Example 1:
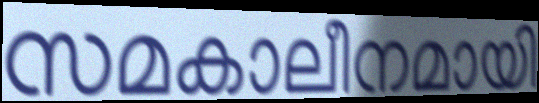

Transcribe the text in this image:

സമകാലീനമായി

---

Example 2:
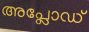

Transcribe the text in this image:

അപ്ലോഡ്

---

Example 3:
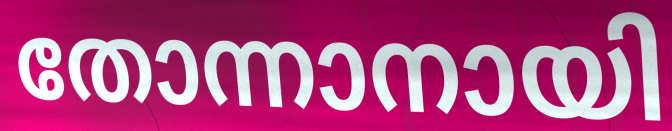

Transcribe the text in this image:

തോന്നാനായി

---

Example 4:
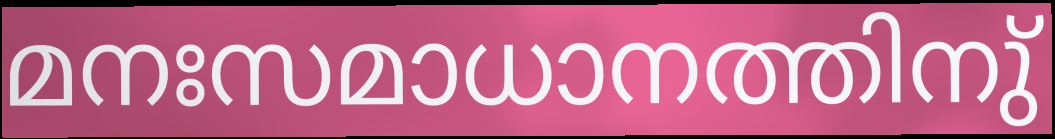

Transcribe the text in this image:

മനഃസമാധാനത്തിനു്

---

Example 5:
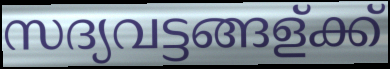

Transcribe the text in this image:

സദ്യവട്ടങ്ങള്ക്ക്